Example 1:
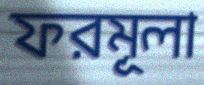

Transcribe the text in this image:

ফরমূলা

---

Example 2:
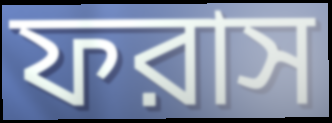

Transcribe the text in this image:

ফরাস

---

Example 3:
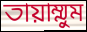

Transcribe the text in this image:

তায়াম্মুম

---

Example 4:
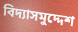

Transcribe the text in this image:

বিদ্যাসমুদ্দেশ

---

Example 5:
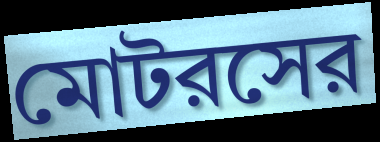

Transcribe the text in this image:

মোটরসের